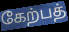
கேற்பத்